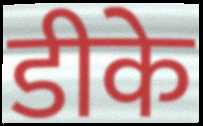
डीके